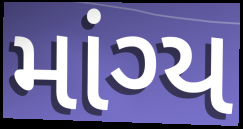
માંગ્ય